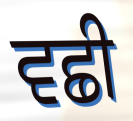
ਵਛੀ